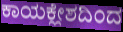
ಕಾಯಕ್ಲೇಶದಿಂದ